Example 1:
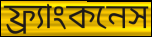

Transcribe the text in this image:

ফ্র্যাংকনেস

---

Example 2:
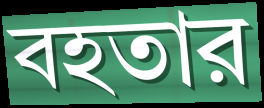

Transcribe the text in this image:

বহতার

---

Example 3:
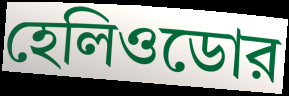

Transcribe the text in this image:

হেলিওডোর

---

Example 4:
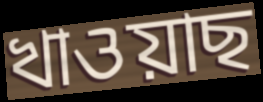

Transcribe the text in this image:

খাওয়াছ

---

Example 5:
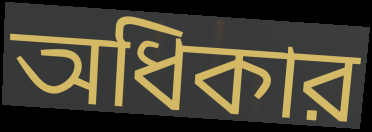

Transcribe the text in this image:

অধিকার